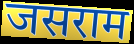
जसराम